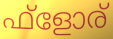
ഫ്ളോര്